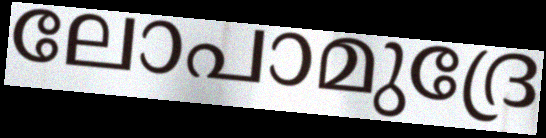
ലോപാമുദ്രേ